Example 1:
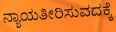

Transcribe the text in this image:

ನ್ಯಾಯತೀರಿಸುವದಕ್ಕೆ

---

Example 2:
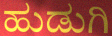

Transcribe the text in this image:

ಹುಡುಗಿ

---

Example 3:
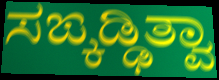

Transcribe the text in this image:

ಸಙ್ಕಡ್ಢಿತ್ವಾ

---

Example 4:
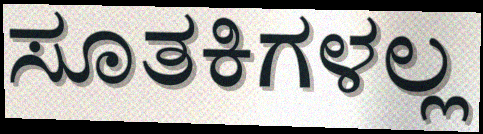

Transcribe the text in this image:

ಸೂತಕಿಗಳಲ್ಲ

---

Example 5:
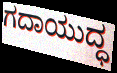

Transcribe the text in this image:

ಗದಾಯುದ್ಧ